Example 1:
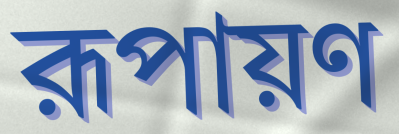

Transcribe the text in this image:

রূপায়ণ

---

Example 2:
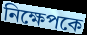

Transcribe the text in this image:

নিক্ষেপকে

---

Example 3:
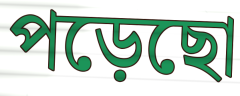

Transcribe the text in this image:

পড়েছো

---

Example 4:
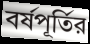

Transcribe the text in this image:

বর্ষপূর্তির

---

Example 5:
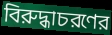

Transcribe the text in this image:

বিরুদ্ধাচরণের